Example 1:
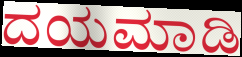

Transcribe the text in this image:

ದಯಮಾಡಿ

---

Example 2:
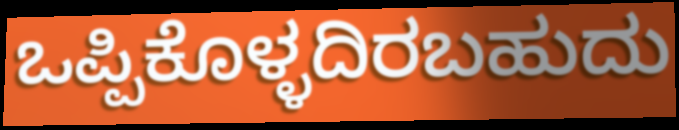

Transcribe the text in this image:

ಒಪ್ಪಿಕೊಳ್ಳದಿರಬಹುದು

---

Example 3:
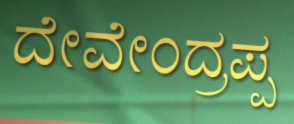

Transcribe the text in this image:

ದೇವೇಂದ್ರಪ್ಪ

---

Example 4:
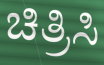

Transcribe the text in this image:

ಚಿತ್ರಿಸಿ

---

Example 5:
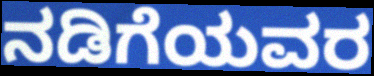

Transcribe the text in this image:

ನಡಿಗೆಯವರ